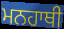
ਮਨਹਾਥੀ